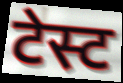
टेस्ट